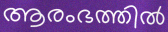
ആരംഭത്തിൽ